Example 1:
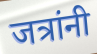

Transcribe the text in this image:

जत्रांनी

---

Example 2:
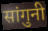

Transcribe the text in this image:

सांगुनी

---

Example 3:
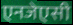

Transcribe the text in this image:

एनजेएसी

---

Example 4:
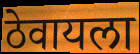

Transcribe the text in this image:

ठेवायला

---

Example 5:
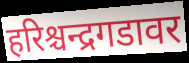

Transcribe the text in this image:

हरिश्चन्द्रगडावर